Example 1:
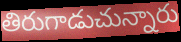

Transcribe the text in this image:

తిరుగాడుచున్నారు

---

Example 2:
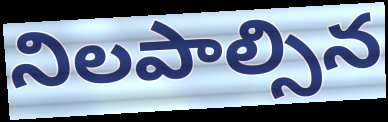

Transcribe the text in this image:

నిలపాల్సిన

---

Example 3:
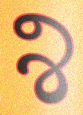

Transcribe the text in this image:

శి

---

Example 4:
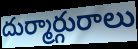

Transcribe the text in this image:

దుర్మార్గురాలు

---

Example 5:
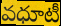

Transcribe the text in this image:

వధూటీ